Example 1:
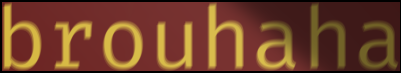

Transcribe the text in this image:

brouhaha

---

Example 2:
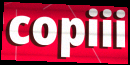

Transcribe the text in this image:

copiii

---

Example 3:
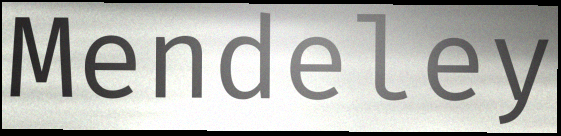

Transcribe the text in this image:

Mendeley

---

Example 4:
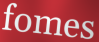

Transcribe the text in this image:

fomes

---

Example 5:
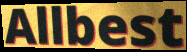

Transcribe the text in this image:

Allbest